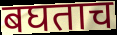
बघताच